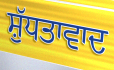
ਸ਼ੁੱਧਤਾਵਾਦ